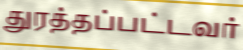
துரத்தப்பட்டவர்